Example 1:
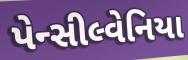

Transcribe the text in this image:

પેન્સીલ્વેનિયા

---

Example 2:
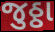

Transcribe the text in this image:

જુઠ્ઠા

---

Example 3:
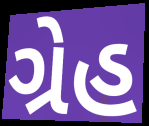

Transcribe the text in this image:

ગ્રેહ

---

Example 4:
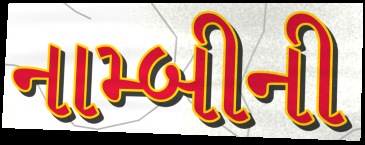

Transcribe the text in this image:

નામ્બીની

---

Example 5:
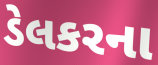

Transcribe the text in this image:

ડેલકરના